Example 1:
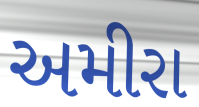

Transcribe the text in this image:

અમીરા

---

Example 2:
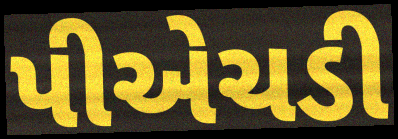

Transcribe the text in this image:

પીએચડી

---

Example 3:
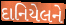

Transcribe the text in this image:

દાનિયેલને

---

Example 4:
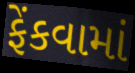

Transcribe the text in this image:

ફેંકવામાં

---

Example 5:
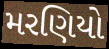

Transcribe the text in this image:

મરણિયો